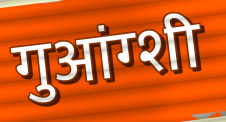
गुआंग्शी